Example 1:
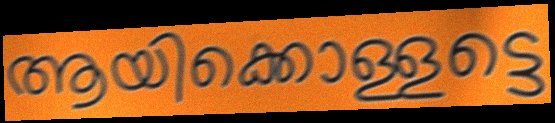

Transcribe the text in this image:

ആയിക്കൊള്ളട്ടെ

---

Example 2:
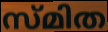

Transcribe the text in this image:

സ്മിത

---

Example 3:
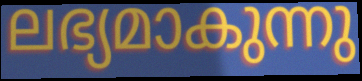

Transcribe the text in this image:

ലഭ്യമാകുന്നു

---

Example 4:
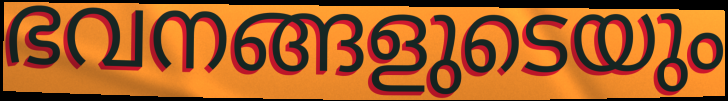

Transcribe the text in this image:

ഭവനങ്ങളുടെയും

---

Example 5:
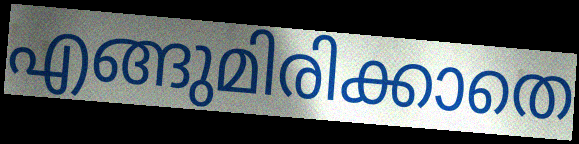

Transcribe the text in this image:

എങ്ങുമിരിക്കാതെ